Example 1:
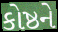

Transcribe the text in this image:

કોષ્ઠને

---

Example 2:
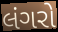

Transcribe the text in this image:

લંગરો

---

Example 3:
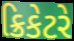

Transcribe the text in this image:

ક્રિકેટરે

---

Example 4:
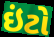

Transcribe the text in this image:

ઇંટો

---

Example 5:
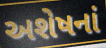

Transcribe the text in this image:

અશેષનાં